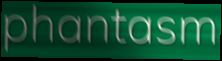
phantasm